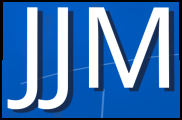
JJM